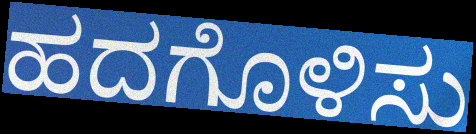
ಹದಗೊಳಿಸು